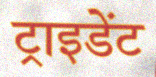
ट्राइडेंट